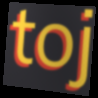
toj